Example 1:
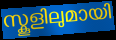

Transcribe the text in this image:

സ്കൂളിലുമായി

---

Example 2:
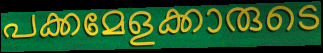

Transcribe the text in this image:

പക്കമേളക്കാരുടെ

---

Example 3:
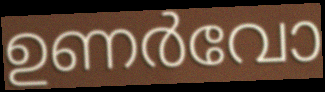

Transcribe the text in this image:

ഉണർവോ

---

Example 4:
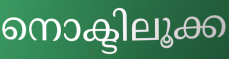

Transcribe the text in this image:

നൊക്ടിലൂക്ക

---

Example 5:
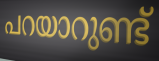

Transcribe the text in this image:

പറയാറുണ്ട്